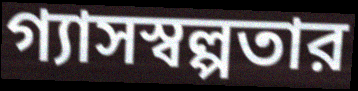
গ্যাসস্বল্পতার